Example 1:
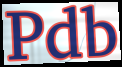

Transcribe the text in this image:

Pdb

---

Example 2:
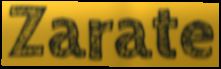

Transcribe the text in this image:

Zarate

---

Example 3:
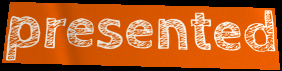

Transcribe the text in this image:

presented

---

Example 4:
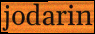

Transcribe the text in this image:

jodarin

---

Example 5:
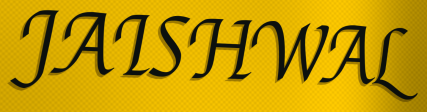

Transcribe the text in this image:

JAISHWAL